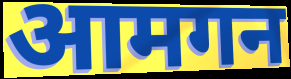
आमगन